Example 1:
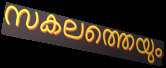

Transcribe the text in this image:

സകലത്തെയും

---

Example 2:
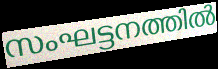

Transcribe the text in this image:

സംഘട്ടനത്തിൽ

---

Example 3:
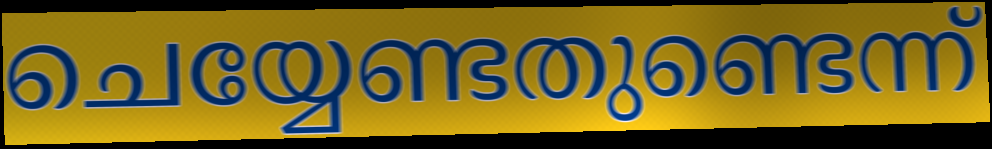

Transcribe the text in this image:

ചെയ്യേണ്ടതുണ്ടെന്ന്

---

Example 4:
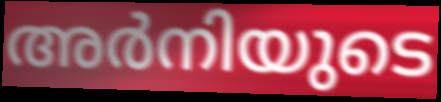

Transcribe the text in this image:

അർനിയുടെ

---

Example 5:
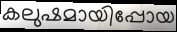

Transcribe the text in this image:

കലുഷമായിപ്പോയ